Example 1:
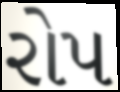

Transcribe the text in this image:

રોપ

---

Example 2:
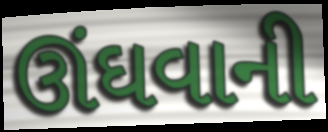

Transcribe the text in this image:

ઊંઘવાની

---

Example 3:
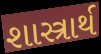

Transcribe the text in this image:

શાસ્ત્રાર્થ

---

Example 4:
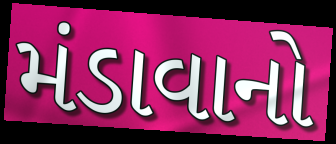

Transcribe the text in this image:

મંડાવાનો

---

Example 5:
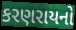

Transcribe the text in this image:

કરણરાયનો